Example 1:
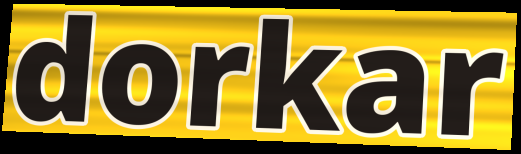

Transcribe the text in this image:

dorkar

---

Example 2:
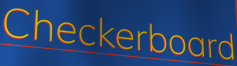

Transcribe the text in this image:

Checkerboard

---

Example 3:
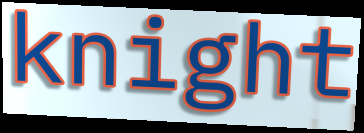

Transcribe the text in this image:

knight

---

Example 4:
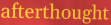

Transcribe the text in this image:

afterthought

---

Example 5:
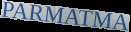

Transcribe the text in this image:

PARMATMA